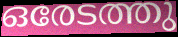
ഒരേടത്തു